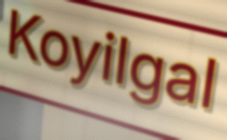
Koyilgal